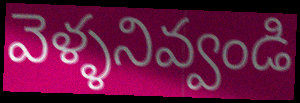
వెళ్ళనివ్వండి